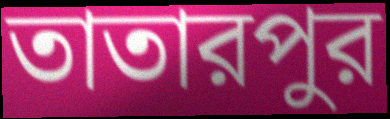
তাতারপুর